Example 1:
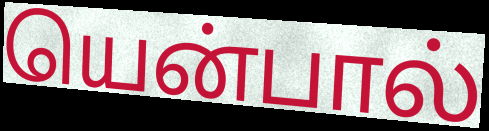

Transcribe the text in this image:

யென்பால்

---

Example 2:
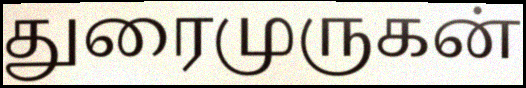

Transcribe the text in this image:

துரைமுருகன்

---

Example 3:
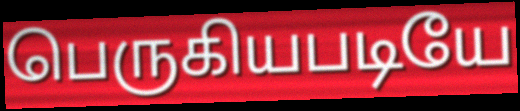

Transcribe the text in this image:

பெருகியபடியே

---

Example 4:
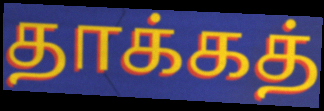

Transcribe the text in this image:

தாக்கத்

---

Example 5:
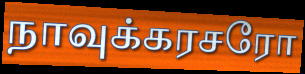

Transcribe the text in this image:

நாவுக்கரசரோ